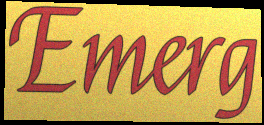
Emerg